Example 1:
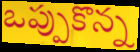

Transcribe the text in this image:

ఒప్పుకొన్న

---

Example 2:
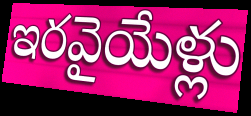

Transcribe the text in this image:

ఇరవైయేళ్లు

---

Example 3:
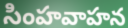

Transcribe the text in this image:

సింహవాహన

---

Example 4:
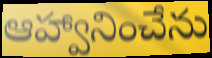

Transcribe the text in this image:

ఆహ్వానించేను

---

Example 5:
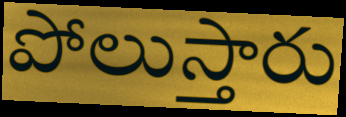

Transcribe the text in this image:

పోలుస్తారు